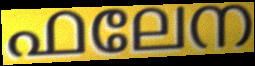
ഫലേന